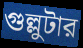
গুল্লুটার